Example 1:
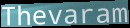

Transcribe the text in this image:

Thevaram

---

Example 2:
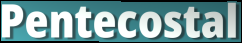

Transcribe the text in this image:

Pentecostal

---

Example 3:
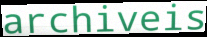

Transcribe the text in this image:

archiveis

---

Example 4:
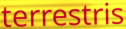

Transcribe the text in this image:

terrestris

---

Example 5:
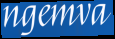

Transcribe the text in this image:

ngemva